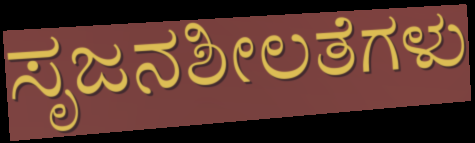
ಸೃಜನಶೀಲತೆಗಳು